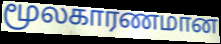
மூலகாரணமான